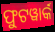
ଫୁଟୱାର୍କ